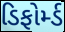
ડિફોર્મ્ડ